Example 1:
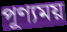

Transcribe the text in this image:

পূণ্যময়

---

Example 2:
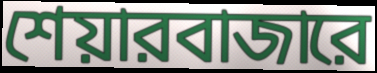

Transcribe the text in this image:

শেয়ারবাজারে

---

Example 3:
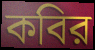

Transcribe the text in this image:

কবির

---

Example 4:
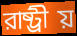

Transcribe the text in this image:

রাষ্ট্রীয়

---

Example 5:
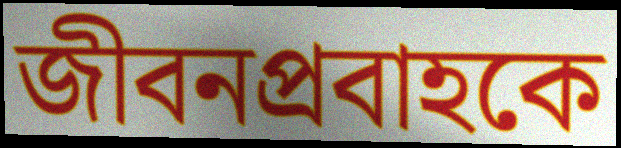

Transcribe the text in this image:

জীবনপ্রবাহকে